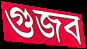
গুজব